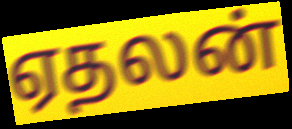
ஏதலன்